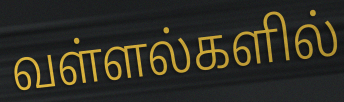
வள்ளல்களில்